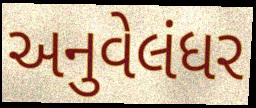
અનુવેલંધર